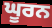
ਘੂਰਨ